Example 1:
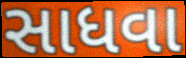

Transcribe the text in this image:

સાધવા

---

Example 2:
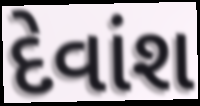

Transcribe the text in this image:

દેવાંશ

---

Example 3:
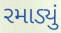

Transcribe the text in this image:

રમાડ્યું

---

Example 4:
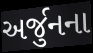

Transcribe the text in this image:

અર્જુનના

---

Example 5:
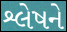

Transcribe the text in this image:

શ્લેષને